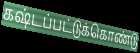
கஷ்டப்பட்டுக்கொண்டு